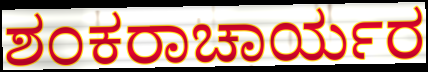
ಶಂಕರಾಚಾರ್ಯರ